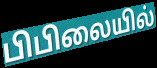
பிபிலையில்